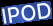
IPOD